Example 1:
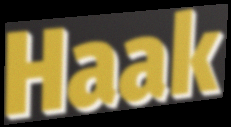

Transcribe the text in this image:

Haak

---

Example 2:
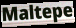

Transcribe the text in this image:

Maltepe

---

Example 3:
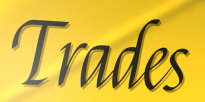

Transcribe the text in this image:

Trades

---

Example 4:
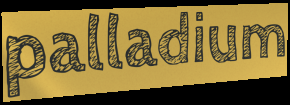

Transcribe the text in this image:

palladium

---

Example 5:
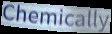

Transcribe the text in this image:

Chemically